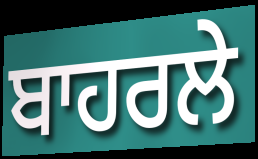
ਬਾਹਰਲੇ